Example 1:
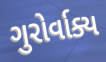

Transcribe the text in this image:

ગુરોર્વાક્ય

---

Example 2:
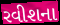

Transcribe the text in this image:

રવીશના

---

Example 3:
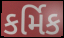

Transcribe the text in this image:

કર્મિક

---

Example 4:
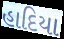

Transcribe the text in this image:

હાદિયા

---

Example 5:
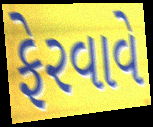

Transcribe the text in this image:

ફેરવાવે